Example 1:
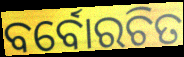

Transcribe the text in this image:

ବର୍ବୋରଚିତ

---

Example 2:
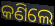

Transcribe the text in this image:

କଣିଲେ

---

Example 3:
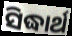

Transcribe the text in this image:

ସିଦ୍ଧାର୍ଥ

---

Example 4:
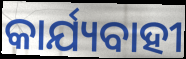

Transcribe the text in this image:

କାର୍ଯ୍ୟବାହୀ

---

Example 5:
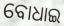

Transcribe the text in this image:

ବୋଧାଇ